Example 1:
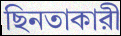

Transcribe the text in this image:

ছিনতাকারী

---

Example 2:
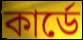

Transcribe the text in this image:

কার্ডে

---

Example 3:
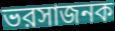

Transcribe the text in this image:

ভরসাজনক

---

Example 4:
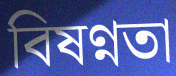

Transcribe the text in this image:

বিষণ্নতা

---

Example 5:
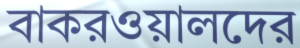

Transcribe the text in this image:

বাকরওয়ালদের